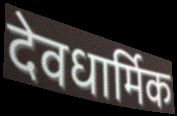
देवधार्मिक